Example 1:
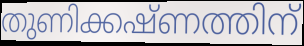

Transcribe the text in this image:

തുണിക്കഷ്ണത്തിന്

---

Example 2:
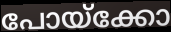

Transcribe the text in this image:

പോയ്ക്കോ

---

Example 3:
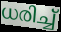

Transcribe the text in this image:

ധരിച്ച്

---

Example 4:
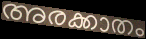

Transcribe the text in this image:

അരക്കാതം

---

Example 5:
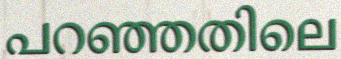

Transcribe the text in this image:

പറഞ്ഞതിലെ